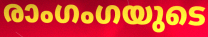
രാംഗംഗയുടെ